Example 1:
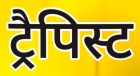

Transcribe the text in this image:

ट्रैपिस्ट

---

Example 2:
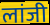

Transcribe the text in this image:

लांजी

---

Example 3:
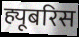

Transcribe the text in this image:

ह्यूबरिस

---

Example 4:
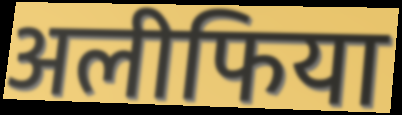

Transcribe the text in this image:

अलीफिया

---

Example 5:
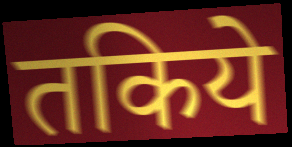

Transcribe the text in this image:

तकिये